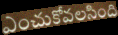
ఎంచుకోవలసింది